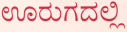
ಊರುಗದಲ್ಲಿ